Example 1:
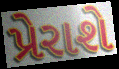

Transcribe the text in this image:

પ્રેરાશે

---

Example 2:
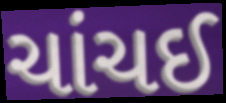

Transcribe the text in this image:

ચાંચઈ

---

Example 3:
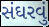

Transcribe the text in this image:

સંઘરવું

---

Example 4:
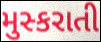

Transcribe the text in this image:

મુસ્કરાતી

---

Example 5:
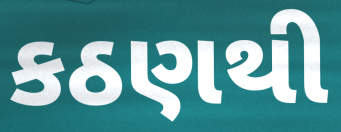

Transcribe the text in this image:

કઠણથી